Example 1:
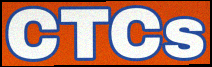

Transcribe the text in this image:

CTCs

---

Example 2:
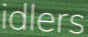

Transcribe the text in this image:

idlers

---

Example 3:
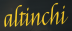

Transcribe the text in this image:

altinchi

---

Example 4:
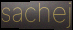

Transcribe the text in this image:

sachej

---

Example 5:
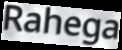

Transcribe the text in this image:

Rahega